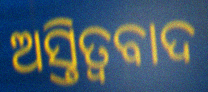
ଅସ୍ତିତ୍ବବାଦ